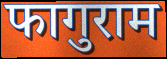
फागुराम